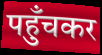
पहुँचकर